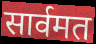
सार्वमत